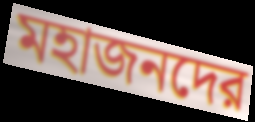
মহাজনদের